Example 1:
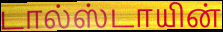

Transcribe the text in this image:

டால்ஸ்டாயின்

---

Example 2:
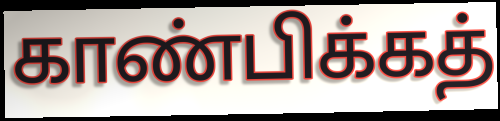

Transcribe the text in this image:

காண்பிக்கத்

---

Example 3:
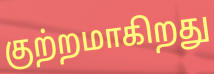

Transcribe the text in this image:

குற்றமாகிறது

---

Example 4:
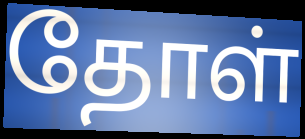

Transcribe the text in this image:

தோள்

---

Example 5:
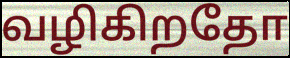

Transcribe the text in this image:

வழிகிறதோ